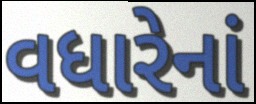
વધારેનાં